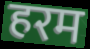
हरम